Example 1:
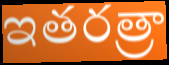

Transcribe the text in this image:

ఇతరత్రా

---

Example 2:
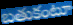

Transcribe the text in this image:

బతుకంటూ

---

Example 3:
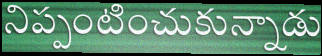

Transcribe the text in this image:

నిప్పంటించుకున్నాడు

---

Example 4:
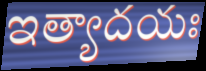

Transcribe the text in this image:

ఇత్యాదయః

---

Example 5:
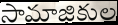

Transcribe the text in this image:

సామాజికుల